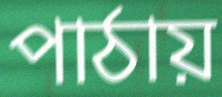
পাঠায়